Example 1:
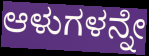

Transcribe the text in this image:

ಆಳುಗಳನ್ನೇ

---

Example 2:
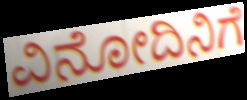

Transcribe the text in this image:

ವಿನೋದಿನಿಗೆ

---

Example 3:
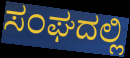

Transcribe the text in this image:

ಸಂಘದಲ್ಲಿ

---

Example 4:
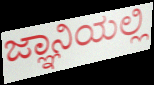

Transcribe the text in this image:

ಜ್ಞಾನಿಯಲ್ಲಿ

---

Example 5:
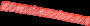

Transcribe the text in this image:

ಪರಿಣಾಮಕಾರಿಯಾಗುವಂತೆ